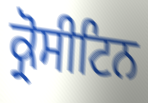
ਕ੍ਰੋਸੀਟਿਨ